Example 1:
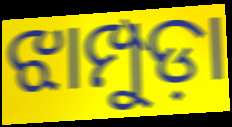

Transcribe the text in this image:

ଝାମ୍ପୁଡ଼ା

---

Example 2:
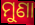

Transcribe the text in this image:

ମୁଣା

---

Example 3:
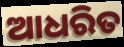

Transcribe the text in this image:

ଆଧରିତ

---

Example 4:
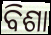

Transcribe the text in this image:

ବିଶା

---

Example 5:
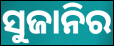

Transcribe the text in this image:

ସୁଜାନିର